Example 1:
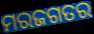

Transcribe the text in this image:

ମରଜଗତର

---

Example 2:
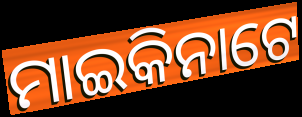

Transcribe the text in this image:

ମାଇକିନାଟେ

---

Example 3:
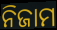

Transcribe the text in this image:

ନିଜାମ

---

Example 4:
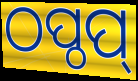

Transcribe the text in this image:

ଠପ୍ଠପ୍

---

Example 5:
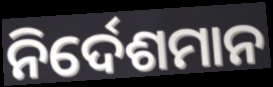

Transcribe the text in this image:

ନିର୍ଦେଶମାନ